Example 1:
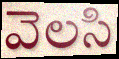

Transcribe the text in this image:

వెలసి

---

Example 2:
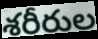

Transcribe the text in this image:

శరీరుల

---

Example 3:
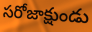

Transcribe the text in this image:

సరోజాక్షుండు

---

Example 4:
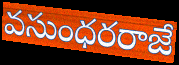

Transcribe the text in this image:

వసుంధరరాజే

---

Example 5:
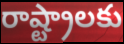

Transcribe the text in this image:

రాష్ట్రాలకు